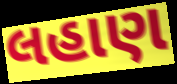
લહાણ